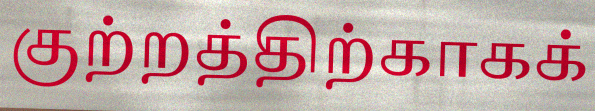
குற்றத்திற்காகக்